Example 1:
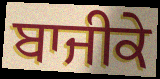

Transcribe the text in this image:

ਬਾਜੀਕੇ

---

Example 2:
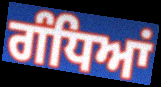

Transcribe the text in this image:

ਗੰਧਿਆਂ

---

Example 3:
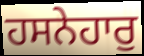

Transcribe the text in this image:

ਹਸਨੇਹਾਰੁ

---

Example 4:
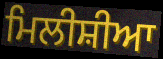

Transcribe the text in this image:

ਮਿਲੀਸ਼ੀਆ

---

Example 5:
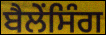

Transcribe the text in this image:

ਬੈਲੇਂਸਿੰਗ